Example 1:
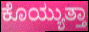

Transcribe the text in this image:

ಕೊಯ್ಯುತ್ತಾ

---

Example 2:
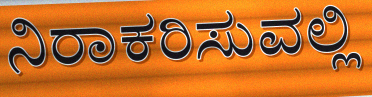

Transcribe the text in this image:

ನಿರಾಕರಿಸುವಲ್ಲಿ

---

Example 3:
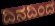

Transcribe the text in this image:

ದಿನದಿಂದ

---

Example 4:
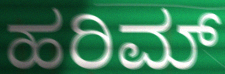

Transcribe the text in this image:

ಹರಿಮ್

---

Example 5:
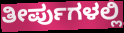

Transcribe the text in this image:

ತೀರ್ಪುಗಳಲ್ಲಿ